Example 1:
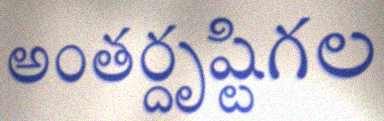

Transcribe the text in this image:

అంతర్దృష్టిగల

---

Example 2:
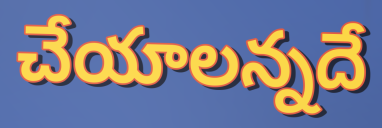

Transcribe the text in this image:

చేయాలన్నదే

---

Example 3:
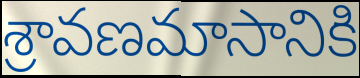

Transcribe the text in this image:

శ్రావణమాసానికి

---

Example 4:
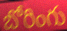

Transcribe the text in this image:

బోరింగు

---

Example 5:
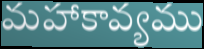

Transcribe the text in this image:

మహాకావ్యము